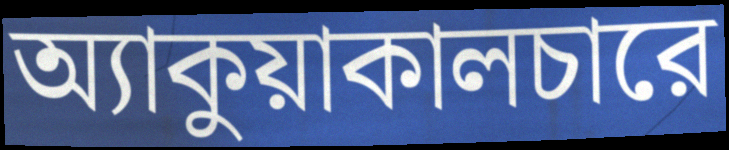
অ্যাকুয়াকালচারে